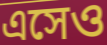
এসেও